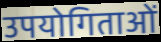
उपयोगिताओं